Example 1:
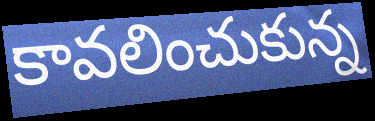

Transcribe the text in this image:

కావలించుకున్న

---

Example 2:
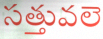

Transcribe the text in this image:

సత్తువలె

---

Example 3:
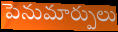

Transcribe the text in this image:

పెనుమార్పులు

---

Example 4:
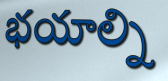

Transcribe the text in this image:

భయాల్ని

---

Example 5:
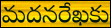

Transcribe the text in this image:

మదనరేఖకు